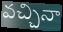
వచ్చినా